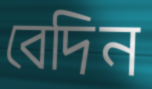
বেদিন